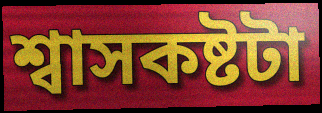
শ্বাসকষ্টটা